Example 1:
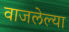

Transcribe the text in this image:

वाजलेल्या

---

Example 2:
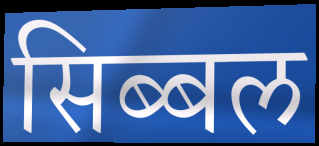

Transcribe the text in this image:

सिब्बल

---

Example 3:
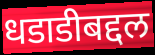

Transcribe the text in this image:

धडाडीबद्दल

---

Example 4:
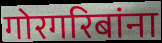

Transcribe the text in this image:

गोरगरिबांना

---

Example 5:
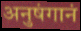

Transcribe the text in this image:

अनुषंगानं